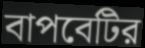
বাপবেটির